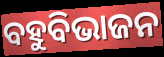
ବହୁବିଭାଜନ